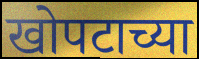
खोपटाच्या